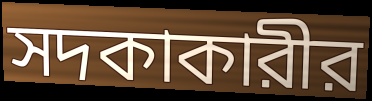
সদকাকারীর